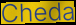
Cheda